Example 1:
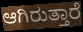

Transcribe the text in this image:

ಆಗಿರುತ್ತಾರೆ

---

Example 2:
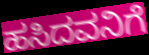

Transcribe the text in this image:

ಹಸಿದವನಿಗೆ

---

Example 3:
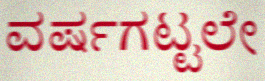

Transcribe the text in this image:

ವರ್ಷಗಟ್ಟಲೇ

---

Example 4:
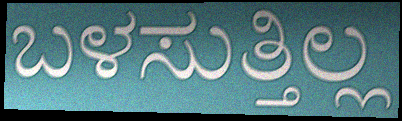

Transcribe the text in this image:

ಬಳಸುತ್ತಿಲ್ಲ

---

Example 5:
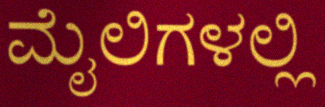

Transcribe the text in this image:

ಮೈಲಿಗಳಲ್ಲಿ